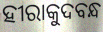
ହୀରାକୁଦବନ୍ଧ